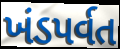
ખંડપર્વત